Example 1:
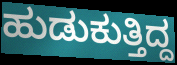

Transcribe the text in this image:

ಹುಡುಕುತ್ತಿದ್ದ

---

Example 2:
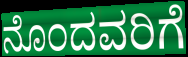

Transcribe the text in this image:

ನೊಂದವರಿಗೆ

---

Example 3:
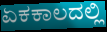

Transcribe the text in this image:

ಏಕಕಾಲದಲ್ಲಿ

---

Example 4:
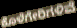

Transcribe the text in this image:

ಕೊಳೆಗೇರಿಗಳಿವೆ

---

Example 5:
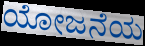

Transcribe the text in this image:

ಯೋಜನೆಯ